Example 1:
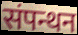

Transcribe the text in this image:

संपन्थन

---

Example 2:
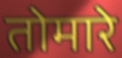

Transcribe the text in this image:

तोमारे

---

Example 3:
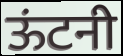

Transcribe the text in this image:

ऊंटनी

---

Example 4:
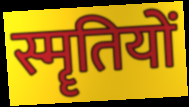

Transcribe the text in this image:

स्मॄतियों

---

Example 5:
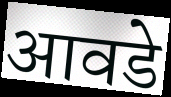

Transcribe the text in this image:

आवडे